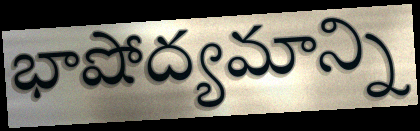
భాషోద్యమాన్ని